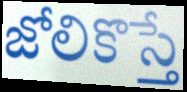
జోలికొస్తే